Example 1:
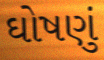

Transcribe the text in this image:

ઘોષણું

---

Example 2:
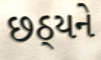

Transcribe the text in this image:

છઠ્યને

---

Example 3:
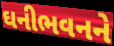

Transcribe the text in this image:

ઘનીભવનને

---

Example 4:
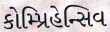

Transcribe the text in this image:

કોમ્પ્રિહેન્સિવ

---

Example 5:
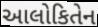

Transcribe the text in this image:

આલોકિતેન